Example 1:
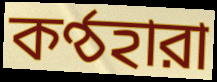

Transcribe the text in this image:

কণ্ঠহারা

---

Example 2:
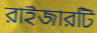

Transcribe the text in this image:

রাইজারটি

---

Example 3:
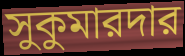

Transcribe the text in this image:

সুকুমারদার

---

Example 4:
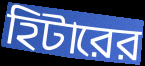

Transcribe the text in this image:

হিটারের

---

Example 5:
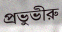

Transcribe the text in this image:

প্রভুভীরু